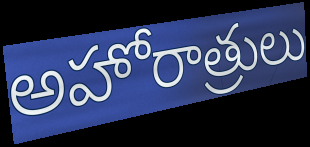
అహోరాత్రులు